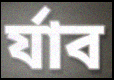
র্যাব